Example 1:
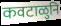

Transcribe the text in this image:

कवटाळुनि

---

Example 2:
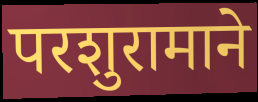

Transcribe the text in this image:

परशुरामाने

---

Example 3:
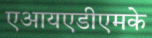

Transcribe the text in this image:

एआयएडीएमके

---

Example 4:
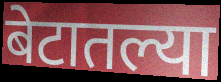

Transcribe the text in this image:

बेटातल्या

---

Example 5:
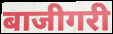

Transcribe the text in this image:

बाजीगरी